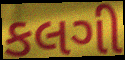
કલગી